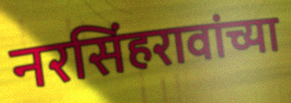
नरसिंहरावांच्या